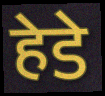
हेडे